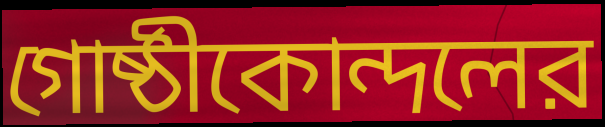
গোষ্ঠীকোন্দলের